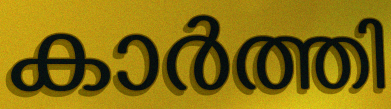
കാർത്തി